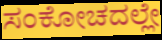
ಸಂಕೋಚದಲ್ಲೇ